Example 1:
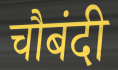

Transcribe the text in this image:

चौबंदी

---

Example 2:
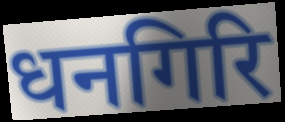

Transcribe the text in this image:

धनगिरि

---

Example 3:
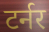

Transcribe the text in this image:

टर्नर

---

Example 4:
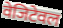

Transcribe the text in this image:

वेजिटेवल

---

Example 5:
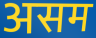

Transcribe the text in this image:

असम